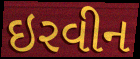
ઇરવીન